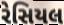
રેસિયલ